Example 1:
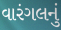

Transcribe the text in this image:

વારંગલનું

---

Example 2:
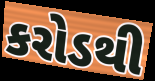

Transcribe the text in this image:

કરોડથી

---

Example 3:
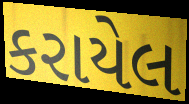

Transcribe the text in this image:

કરાયેલ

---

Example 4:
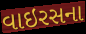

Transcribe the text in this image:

વાઇરસના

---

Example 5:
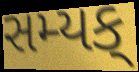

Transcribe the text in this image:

સમ્યક્